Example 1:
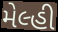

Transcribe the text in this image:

મેલ્હી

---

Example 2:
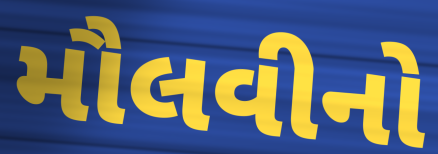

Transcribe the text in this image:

મૌલવીનો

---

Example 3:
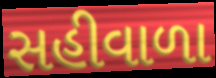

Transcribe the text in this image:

સહીવાળા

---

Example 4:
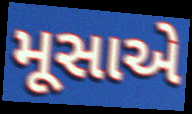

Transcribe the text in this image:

મૂસાએ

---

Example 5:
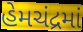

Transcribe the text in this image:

હેમચંદ્રમાં